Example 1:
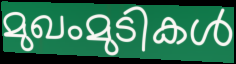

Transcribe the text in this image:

മുഖംമുടികൾ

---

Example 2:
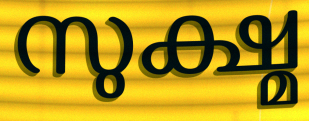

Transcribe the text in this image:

സുക്ഷ്മ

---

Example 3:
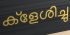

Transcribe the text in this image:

ക്ളേശിച്ചു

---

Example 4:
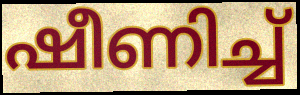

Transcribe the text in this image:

ഷീണിച്ച്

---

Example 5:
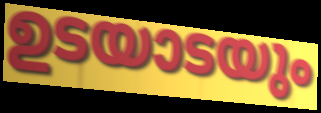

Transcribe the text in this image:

ഉടയാടയും